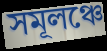
সমূলঞ্চে